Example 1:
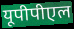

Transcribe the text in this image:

यूपीपीएल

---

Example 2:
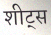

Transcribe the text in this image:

शीट्स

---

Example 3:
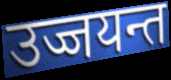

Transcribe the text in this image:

उज्जयन्त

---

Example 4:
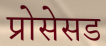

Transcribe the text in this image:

प्रोसेसड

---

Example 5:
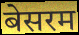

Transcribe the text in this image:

बेसरम